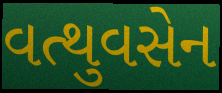
વત્થુવસેન